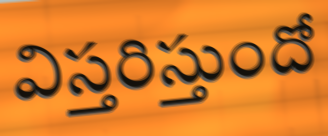
విస్తరిస్తుందో